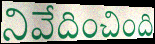
నివేదించింది